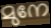
മുനേ